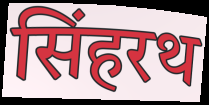
सिंहरथ